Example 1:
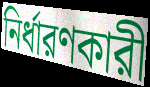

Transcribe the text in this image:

নির্ধারণকারী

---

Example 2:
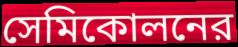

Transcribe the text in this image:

সেমিকোলনের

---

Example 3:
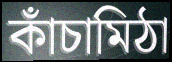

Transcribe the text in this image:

কাঁচামিঠা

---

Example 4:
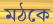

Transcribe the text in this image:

মঠকে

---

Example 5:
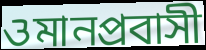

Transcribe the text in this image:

ওমানপ্রবাসী